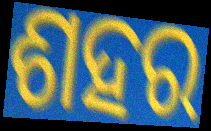
ଶହର